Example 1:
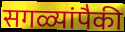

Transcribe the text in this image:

सगळ्यांपैकी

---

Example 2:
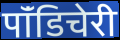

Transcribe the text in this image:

पॉंडिचेरी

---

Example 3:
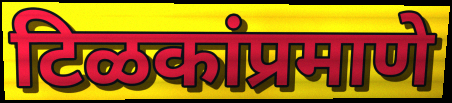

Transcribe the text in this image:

टिळकांप्रमाणे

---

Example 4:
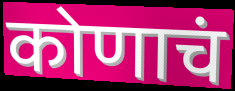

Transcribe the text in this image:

कोणाचं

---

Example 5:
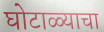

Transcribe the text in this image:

घोटाळ्याचा